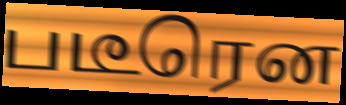
படீரென